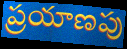
ప్రయాణపు